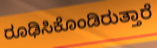
ರೂಢಿಸಿಕೊಂಡಿರುತ್ತಾರೆ